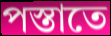
পস্তাতে